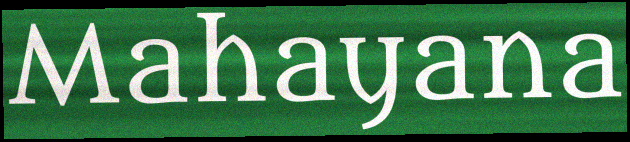
Mahayana